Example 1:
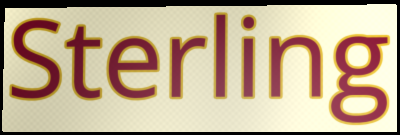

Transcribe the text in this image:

Sterling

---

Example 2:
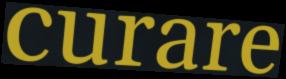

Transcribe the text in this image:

curare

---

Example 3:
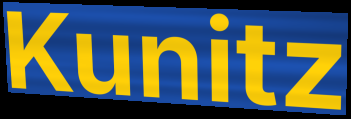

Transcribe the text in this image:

Kunitz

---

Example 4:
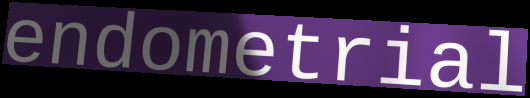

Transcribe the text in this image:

endometrial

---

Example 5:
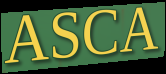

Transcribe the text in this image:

ASCA